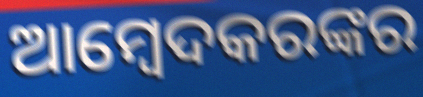
ଆମ୍ବେଦକରଙ୍କର